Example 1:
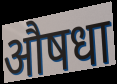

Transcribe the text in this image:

औषधा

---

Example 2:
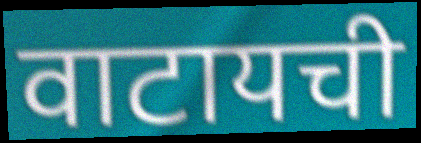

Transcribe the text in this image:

वाटायची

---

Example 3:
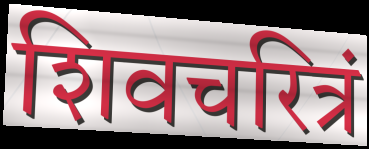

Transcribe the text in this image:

शिवचरित्रं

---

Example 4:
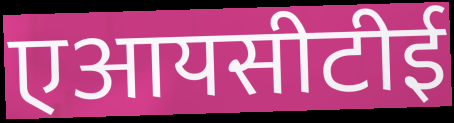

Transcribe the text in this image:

एआयसीटीई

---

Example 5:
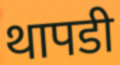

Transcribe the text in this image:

थापडी